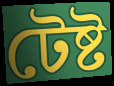
টেষ্ট